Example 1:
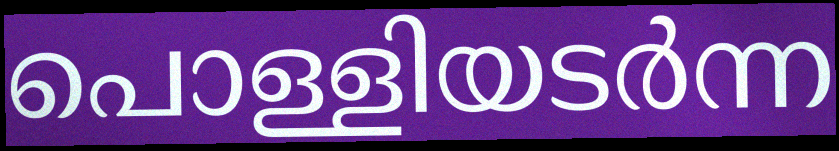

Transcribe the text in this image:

പൊള്ളിയടർന്ന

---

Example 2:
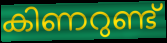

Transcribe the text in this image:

കിണറുണ്ട്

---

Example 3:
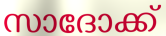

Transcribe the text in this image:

സാദോക്ക്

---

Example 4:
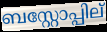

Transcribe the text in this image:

ബസ്റ്റോപ്പില്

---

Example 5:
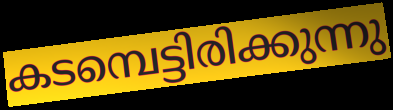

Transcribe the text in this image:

കടമ്പെട്ടിരിക്കുന്നു